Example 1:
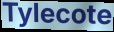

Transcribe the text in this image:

Tylecote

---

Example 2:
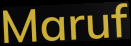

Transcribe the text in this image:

Maruf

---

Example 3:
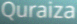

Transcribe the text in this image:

Quraiza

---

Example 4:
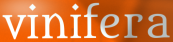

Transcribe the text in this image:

vinifera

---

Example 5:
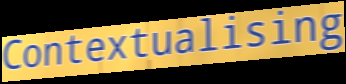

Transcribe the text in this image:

Contextualising